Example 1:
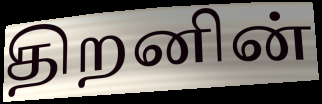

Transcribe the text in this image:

திறனின்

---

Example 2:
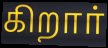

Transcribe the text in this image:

கிறார்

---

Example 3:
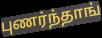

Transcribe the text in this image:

புணர்ந்தாங்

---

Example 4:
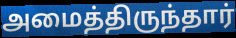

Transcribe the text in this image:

அமைத்திருந்தார்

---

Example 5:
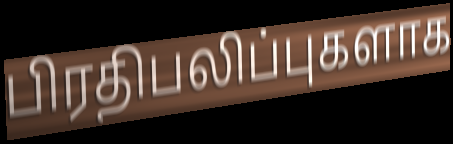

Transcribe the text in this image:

பிரதிபலிப்புகளாக